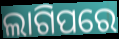
ଲାଗିପରେ